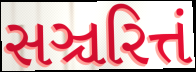
સઞ્ચરિત્તં